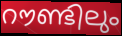
റൗണ്ടിലും